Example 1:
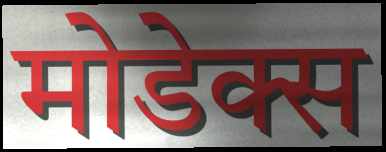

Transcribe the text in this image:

मोडेक्स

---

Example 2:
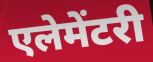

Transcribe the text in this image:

एलेमेंटरी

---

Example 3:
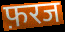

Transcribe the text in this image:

फ़रज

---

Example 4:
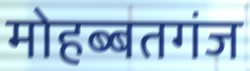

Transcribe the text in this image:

मोहब्बतगंज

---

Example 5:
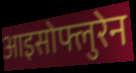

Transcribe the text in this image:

आइसोफ्लुरेन